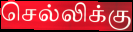
செல்லிக்கு